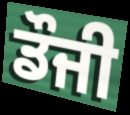
ਡੌਜੀ